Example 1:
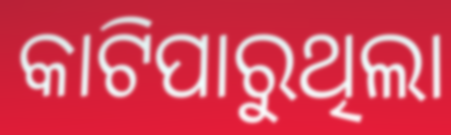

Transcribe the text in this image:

କାଟିପାରୁଥିଲା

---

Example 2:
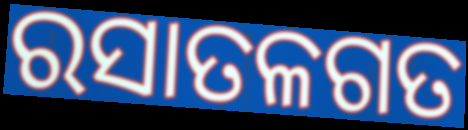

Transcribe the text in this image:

ରସାତଳଗତ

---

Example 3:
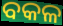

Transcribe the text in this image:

ବକଳ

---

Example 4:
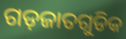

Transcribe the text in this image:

ଗଡ଼ଜାତଗୁଡିକ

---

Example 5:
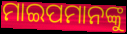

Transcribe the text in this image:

ମାଇପମାନଙ୍କୁ